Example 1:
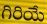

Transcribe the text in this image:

గిరియే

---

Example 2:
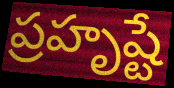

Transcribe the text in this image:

ప్రహృష్టే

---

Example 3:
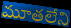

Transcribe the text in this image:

మూతలేని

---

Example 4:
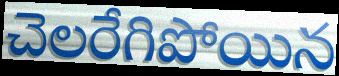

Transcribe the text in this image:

చెలరేగిపోయిన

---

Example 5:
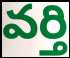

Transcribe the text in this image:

వర్తి